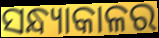
ସନ୍ଧ୍ୟାକାଳର